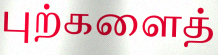
புற்களைத்